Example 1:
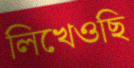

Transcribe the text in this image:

লিখেওছি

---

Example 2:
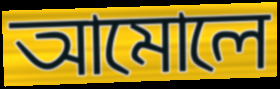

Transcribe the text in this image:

আমোলে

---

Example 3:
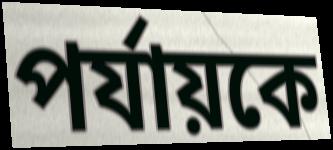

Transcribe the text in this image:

পর্যায়কে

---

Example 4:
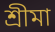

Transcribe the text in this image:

শ্রীমা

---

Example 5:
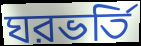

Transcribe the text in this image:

ঘরভর্তি